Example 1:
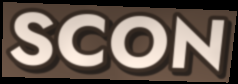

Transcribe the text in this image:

SCON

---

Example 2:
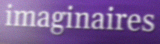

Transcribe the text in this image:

imaginaires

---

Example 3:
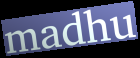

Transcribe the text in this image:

madhu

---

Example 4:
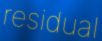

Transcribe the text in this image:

residual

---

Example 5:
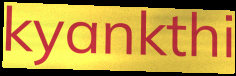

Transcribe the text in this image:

kyankthi